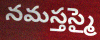
నమస్తస్మై